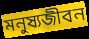
মনুষ্যজীবন